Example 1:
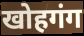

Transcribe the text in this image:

खोहगंग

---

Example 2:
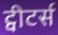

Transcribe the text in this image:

ट्वीटर्स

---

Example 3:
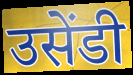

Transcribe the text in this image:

उसेंडी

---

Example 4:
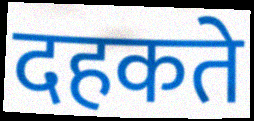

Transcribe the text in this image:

दहकते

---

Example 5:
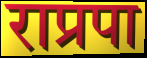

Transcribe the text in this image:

राप्रपा